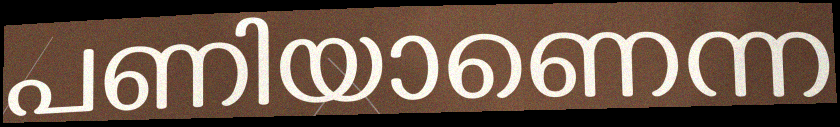
പണിയാണെന്ന